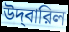
উদ্‌বারিল